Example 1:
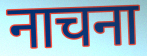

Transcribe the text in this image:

नाचना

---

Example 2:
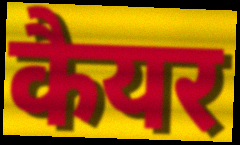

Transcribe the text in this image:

कैयर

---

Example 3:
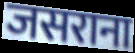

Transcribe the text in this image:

जसराना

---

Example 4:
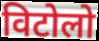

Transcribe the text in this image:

विटोलो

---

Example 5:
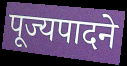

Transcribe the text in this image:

पूज्यपादने